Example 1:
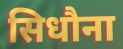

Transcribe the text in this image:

सिधौना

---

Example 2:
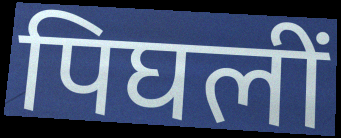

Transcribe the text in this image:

पिघलीं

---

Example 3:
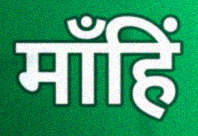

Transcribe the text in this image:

माँहिं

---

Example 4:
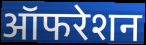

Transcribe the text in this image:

ऑफरेशन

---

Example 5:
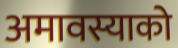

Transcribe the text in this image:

अमावस्याको